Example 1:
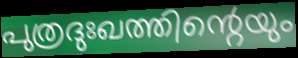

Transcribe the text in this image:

പുത്രദുഃഖത്തിന്റെയും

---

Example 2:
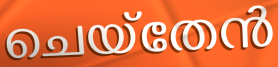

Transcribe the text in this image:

ചെയ്‌തേൻ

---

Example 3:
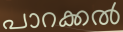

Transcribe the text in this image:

പാറക്കൽ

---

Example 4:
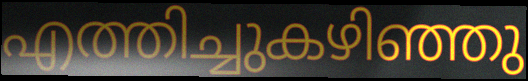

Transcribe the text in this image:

എത്തിച്ചുകഴിഞ്ഞു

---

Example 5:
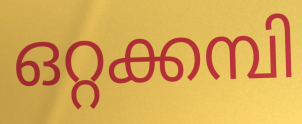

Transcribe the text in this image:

ഒറ്റക്കമ്പി